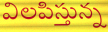
విలపిస్తున్న